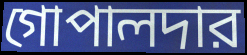
গোপালদার